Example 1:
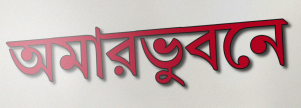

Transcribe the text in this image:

অমারভুবনে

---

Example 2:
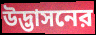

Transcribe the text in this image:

উদ্ভাসনের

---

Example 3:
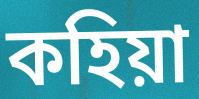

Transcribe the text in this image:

কহিয়া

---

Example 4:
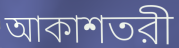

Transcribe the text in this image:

আকাশতরী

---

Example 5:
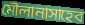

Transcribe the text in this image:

মৌলানাসাহেব